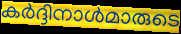
കർദ്ദിനാൾമാരുടെ